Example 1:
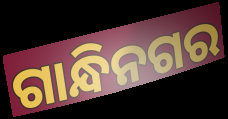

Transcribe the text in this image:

ଗାନ୍ଧିନଗର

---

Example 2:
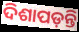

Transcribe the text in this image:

ଦିଶାପଡ଼ନ୍ତି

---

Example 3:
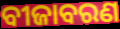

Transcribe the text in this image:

ବୀଜାବରଣ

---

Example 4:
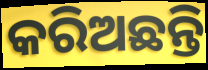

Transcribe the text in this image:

କରିଅଛନ୍ତି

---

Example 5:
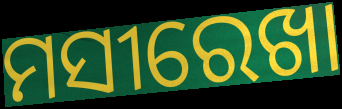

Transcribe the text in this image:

ମସୀରେଖା